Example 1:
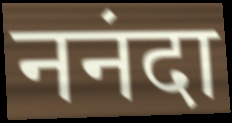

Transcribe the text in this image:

ननंदा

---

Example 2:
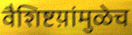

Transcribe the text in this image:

वैशिष्टय़ांमुळेच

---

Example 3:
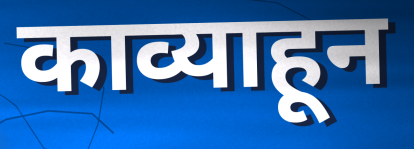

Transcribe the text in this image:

काव्याहून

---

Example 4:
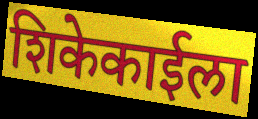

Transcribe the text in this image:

शिकेकाईला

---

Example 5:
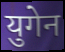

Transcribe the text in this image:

युगेन